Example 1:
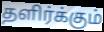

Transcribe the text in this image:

தளிர்க்கும்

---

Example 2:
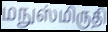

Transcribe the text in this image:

மநுஸ்மிருதி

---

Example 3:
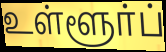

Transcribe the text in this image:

உள்ளூர்ப்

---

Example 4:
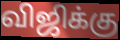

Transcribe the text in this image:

விஜிக்கு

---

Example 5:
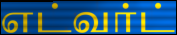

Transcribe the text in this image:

எட்வர்ட்